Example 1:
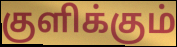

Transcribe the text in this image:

குளிக்கும்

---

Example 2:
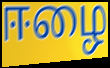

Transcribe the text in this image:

ஈழை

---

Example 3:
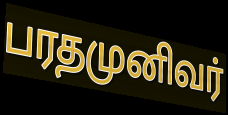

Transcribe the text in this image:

பரதமுனிவர்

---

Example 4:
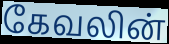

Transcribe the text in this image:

கேவலின்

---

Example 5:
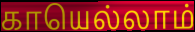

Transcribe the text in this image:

காயெல்லாம்